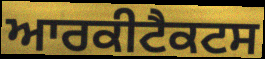
ਆਰਕੀਟੈਕਟਸ